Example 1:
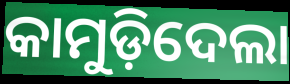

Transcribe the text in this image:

କାମୁଡ଼ିଦେଲା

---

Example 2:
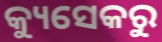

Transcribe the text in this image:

କ୍ୟୁସେକରୁ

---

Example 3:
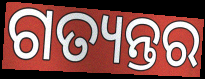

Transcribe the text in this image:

ଗତ୍ୟନ୍ତର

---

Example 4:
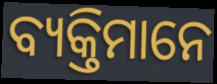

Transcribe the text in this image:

ବ୍ୟକ୍ତିମାନେ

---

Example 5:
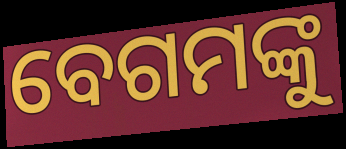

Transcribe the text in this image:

ବେଗମଙ୍କୁ